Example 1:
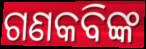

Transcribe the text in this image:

ଗଣକବିଙ୍କ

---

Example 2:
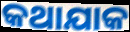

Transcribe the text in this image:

କଥାଯାକ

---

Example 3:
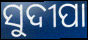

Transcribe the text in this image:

ସୁଦୀପା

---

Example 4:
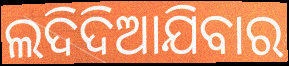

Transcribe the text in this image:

ଲଦିଦିଆଯିବାର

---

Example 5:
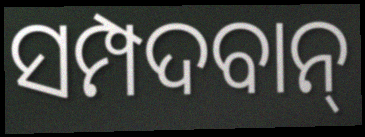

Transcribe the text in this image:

ସମ୍ପଦବାନ୍